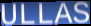
ULLAS